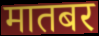
मातबर